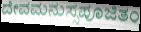
ದೇವಮನುಸ್ಸಪೂಜಿತಂ